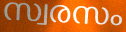
സ്വരസം